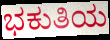
ಭಕುತಿಯ